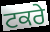
ਟਕਰੇ